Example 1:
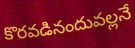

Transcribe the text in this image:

కొరవడినందువల్లనే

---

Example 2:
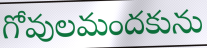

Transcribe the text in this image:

గోవులమందకును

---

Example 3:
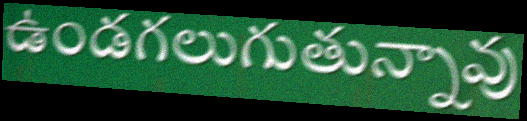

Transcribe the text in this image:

ఉండగలుగుతున్నావు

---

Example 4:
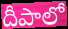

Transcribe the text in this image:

దీపాలో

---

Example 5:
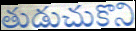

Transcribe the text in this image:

తుడుచుకొని